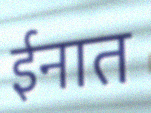
ईनात